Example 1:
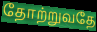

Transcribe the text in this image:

தோற்றுவதே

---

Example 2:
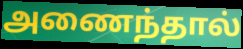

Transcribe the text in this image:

அணைந்தால்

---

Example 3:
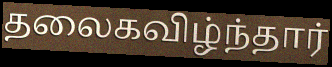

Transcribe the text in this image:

தலைகவிழ்ந்தார்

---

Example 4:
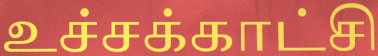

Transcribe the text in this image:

உச்சக்காட்சி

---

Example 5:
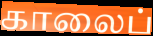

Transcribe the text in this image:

காலைப்